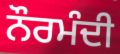
ਨੌਰਮੰਦੀ